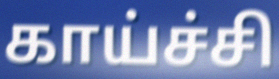
காய்ச்சி